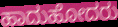
ಹಾದುಹೋದರು